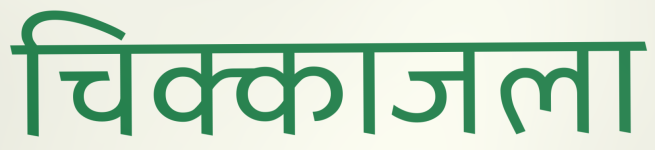
चिक्काजला